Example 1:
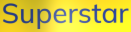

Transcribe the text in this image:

Superstar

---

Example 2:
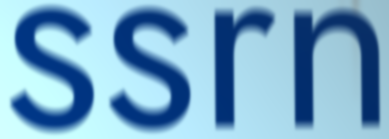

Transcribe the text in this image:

ssrn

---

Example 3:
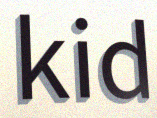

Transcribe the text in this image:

kid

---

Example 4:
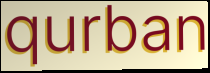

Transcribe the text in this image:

qurban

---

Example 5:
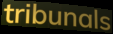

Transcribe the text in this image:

tribunals